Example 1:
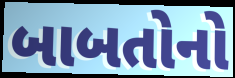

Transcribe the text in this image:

બાબતોનો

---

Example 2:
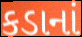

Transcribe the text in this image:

કડાનાં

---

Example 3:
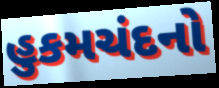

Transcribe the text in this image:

હુકમચંદનો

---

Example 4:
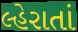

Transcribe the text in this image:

લ્હેરાતાં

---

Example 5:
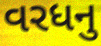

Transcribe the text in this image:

વરધનુ